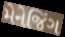
મેનેજિંગ